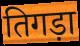
तिगड़ा